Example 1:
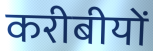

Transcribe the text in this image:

करीबीयों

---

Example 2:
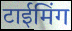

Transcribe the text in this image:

टाईमिंग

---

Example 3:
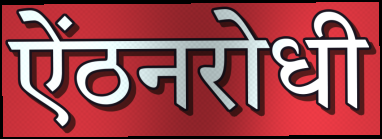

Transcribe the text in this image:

ऐंठनरोधी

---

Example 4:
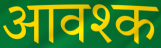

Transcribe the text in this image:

आवश्क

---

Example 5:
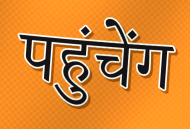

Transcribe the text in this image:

पहुंचेंग